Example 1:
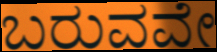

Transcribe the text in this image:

ಬರುವವೇ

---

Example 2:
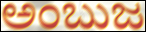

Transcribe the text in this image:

ಅಂಬುಜ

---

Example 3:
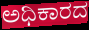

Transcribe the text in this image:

ಅಧಿಕಾರದ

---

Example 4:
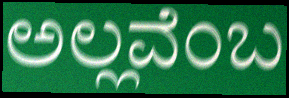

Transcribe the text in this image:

ಅಲ್ಲವೆಂಬ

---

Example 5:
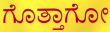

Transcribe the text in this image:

ಗೊತ್ತಾಗೋ